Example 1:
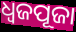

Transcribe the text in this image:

ଧ୍ୱଜପୂଜା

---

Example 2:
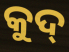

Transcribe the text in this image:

କୁଦ୍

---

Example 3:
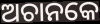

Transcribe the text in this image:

ଅଚାନକେ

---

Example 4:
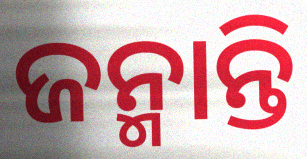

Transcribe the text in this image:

ଜନ୍ମାନ୍ତି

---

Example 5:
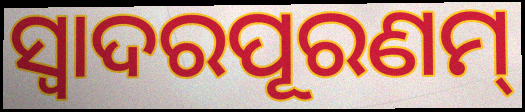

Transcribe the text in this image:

ସ୍ଵାଦରପୂରଣମ୍